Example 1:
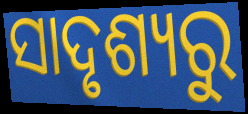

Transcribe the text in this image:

ସାଦୃଶ୍ୟରୁ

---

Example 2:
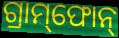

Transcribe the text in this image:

ଗ୍ରାମ୍‌ଫୋନ୍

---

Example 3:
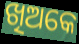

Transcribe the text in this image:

ଖିଅକେ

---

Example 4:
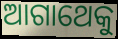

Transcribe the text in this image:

ଆଗାଥେକୁ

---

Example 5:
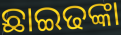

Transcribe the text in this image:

ଛାଇଢଙ୍କା